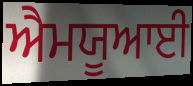
ਐਮਯੂਆਈ